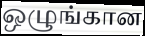
ஒழுங்கான